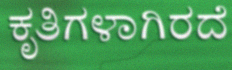
ಕೃತಿಗಳಾಗಿರದೆ